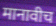
मानावीच